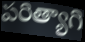
పరిత్యాగి